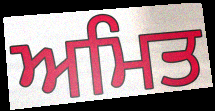
ਅਮਿਤ